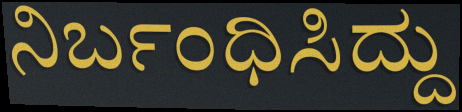
ನಿರ್ಬಂಧಿಸಿದ್ದು